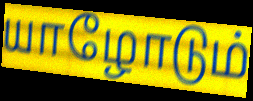
யாழோடும்